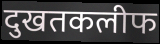
दुखतकलीफ